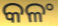
କଳଂ